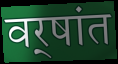
वर्षांत